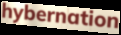
hybernation